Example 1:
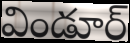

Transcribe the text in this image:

విండూర్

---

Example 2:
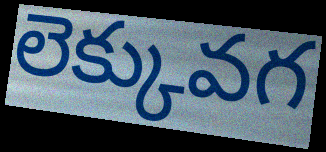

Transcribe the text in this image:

లెక్కువగ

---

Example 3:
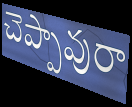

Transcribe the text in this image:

చెప్పావురా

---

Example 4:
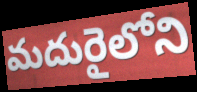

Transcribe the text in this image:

మదురైలోని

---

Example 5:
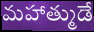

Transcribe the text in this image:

మహాత్ముడే